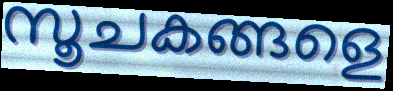
സൂചകങ്ങളെ